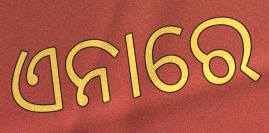
ଏନାରେ